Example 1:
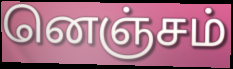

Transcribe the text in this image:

னெஞ்சம்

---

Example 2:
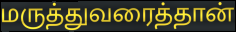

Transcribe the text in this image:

மருத்துவரைத்தான்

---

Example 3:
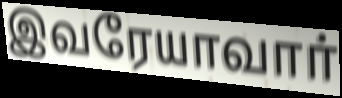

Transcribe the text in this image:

இவரேயாவார்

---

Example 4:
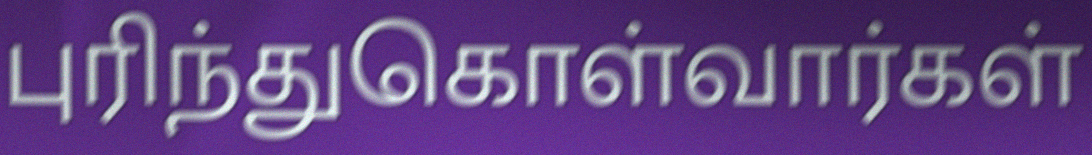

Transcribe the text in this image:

புரிந்துகொள்வார்கள்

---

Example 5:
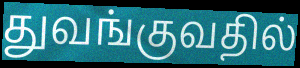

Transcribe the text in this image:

துவங்குவதில்